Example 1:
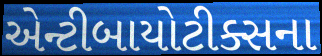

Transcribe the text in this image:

એન્ટીબાયોટીક્સના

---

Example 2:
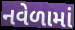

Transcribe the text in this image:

નવેળામાં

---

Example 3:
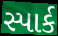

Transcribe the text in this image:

સ્પાર્ક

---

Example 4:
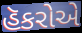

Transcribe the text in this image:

હૅકરોએ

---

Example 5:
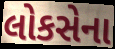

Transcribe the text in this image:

લોકસેના